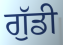
ਗੁੱਡੀ